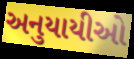
અનુયાયીઓ